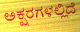
ಅಕ್ಷರಗಳಲ್ಲಿದೆ